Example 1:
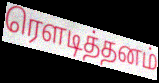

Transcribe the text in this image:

ரௌடித்தனம்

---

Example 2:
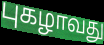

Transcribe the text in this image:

புகழாவது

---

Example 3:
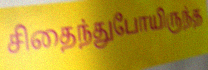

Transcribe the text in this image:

சிதைந்துபோயிருந்த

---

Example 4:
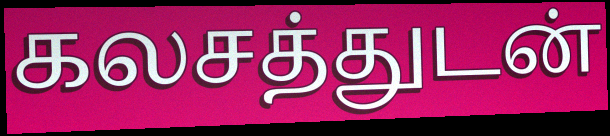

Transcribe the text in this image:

கலசத்துடன்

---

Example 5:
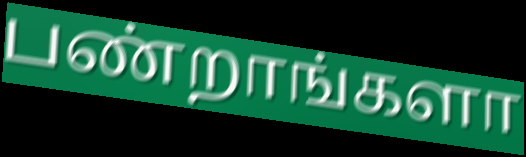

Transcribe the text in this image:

பண்றாங்களா